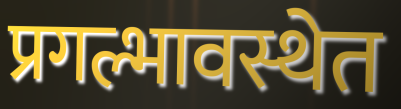
प्रगल्भावस्थेत